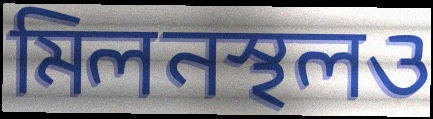
মিলনস্থলও